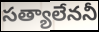
సత్యాలేననీ